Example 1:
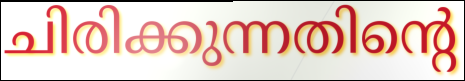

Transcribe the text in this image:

ചിരിക്കുന്നതിന്റെ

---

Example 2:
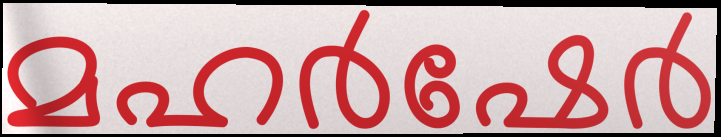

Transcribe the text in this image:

മഹർഷേർ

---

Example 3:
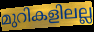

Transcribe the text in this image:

മുറികളിലല്ല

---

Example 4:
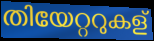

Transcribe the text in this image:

തിയേറ്ററുകള്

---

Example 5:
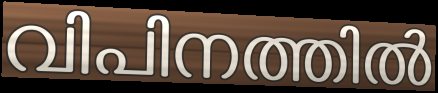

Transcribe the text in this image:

വിപിനത്തിൽ